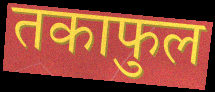
तकाफुल